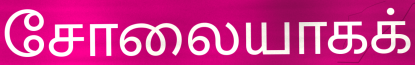
சோலையாகக்